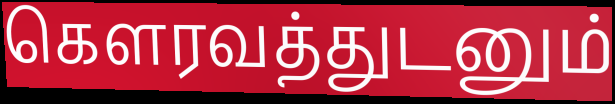
கௌரவத்துடனும்